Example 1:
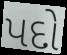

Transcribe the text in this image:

પદો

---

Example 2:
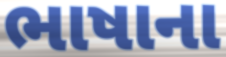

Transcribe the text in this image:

ભાષાના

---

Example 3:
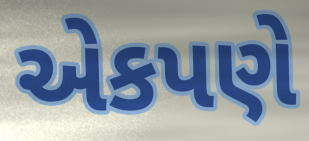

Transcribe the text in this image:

એકપણે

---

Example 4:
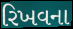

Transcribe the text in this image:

રિખવના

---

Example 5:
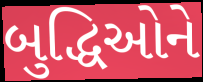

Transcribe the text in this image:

બુદ્ધિઓને